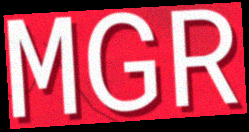
MGR